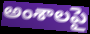
అంశాలపై